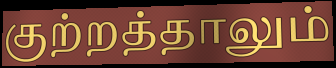
குற்றத்தாலும்